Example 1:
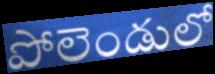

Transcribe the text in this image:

పోలెండులో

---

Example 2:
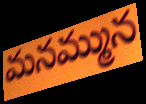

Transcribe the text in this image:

మనమ్మున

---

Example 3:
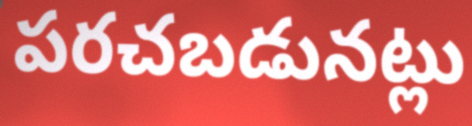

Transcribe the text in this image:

పరచబడునట్లు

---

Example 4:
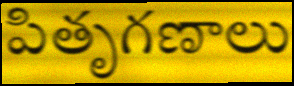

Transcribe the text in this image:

పితృగణాలు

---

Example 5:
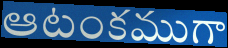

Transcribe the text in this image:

ఆటంకముగా